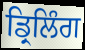
ਡ੍ਰਿਲਿੰਗ